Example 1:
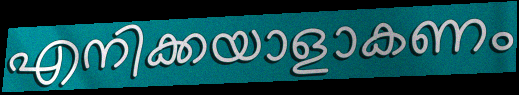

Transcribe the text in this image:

എനിക്കയാളാകണം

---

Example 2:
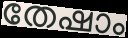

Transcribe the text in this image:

തേഷാം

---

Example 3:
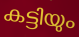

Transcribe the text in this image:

കട്ടിയും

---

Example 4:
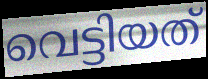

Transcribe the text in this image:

വെട്ടിയത്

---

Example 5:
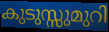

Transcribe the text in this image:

കുടുസ്സുമുറി